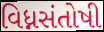
વિધ્નસંતોષી